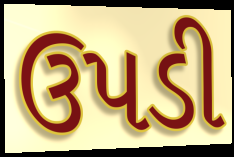
ઉપડી